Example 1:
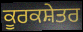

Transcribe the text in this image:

ਕੂਰਕਸ਼ੇਤਰ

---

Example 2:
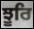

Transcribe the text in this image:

ਝੂਰਿ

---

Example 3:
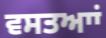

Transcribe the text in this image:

ਵਸਤਆਾਂ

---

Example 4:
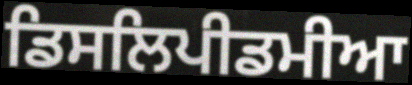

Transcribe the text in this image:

ਡਿਸਲਿਪੀਡਮੀਆ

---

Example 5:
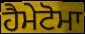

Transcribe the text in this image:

ਹੈਮੇਟੋਮਾ